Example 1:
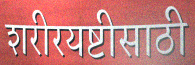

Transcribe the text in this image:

शरीरयष्टीसाठी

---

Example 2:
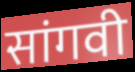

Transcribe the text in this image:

सांगवी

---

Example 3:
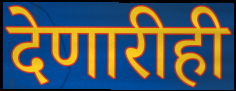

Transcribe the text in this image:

देणारीही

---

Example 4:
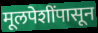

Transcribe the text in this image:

मूलपेशींपासून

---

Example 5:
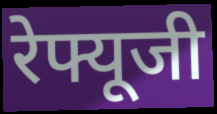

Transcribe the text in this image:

रेफ्यूजी